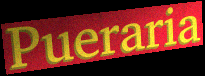
Pueraria